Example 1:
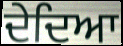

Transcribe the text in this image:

ਦੇਦਿਆ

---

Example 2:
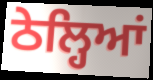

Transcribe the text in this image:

ਠੇਲ੍ਹਿਆਂ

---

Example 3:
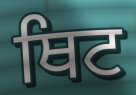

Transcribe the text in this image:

ਥਿਟ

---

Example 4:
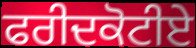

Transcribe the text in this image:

ਫਰੀਦਕੋਟੀਏ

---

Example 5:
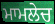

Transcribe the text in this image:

ਮਾਮਲੇਚ